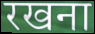
रखना